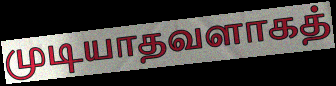
முடியாதவளாகத்